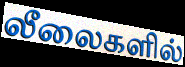
லீலைகளில்